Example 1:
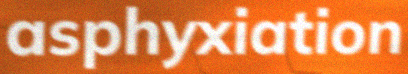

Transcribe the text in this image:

asphyxiation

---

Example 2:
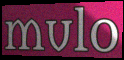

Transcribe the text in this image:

mulo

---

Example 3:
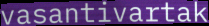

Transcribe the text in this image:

vasantivartak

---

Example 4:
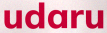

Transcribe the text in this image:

udaru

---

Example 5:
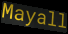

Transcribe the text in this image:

Mayall